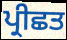
ਪ੍ਰੀਛਤ